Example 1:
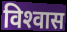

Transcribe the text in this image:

विश्‍वास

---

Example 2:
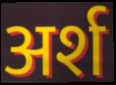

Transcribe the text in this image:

अर्श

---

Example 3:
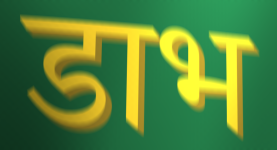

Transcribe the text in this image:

डाभ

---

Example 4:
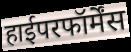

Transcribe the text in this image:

हाईपरफॉर्मेंस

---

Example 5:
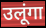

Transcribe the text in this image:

उलूंगा